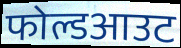
फोल्डआउट